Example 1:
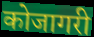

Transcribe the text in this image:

कोजागरी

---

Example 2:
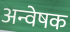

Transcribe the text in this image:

अन्वेषक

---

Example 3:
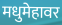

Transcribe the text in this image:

मधुमेहावर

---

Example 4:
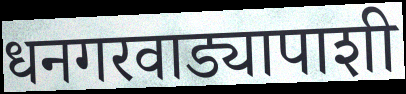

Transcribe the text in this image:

धनगरवाड्यापाशी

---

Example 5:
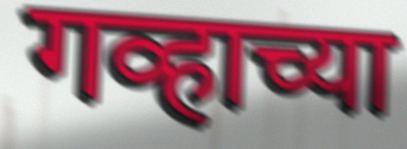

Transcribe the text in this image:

गव्हाच्या